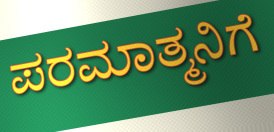
ಪರಮಾತ್ಮನಿಗೆ